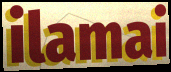
ilamai